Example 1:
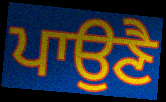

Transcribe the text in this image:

ਪਾਉਣੈ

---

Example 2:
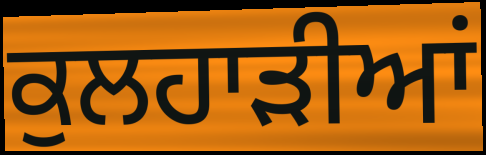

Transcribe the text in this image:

ਕੁਲਹਾੜੀਆਂ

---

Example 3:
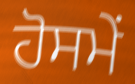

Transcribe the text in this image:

ਹੋਸਮੇਂ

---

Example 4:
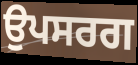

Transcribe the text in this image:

ਉਪਸਰਗ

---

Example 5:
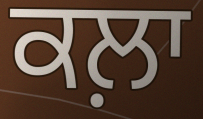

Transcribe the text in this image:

ਕਲ਼ਾ